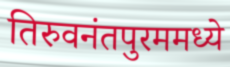
तिरुवनंतपुरममध्ये